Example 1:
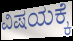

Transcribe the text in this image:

ವಿಷಯಕ್ಕೆ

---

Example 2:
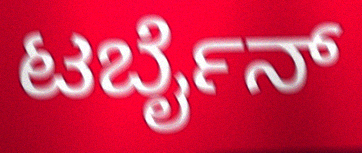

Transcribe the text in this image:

ಟರ್ಬೈನ್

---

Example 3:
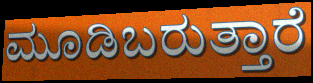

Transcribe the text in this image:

ಮೂಡಿಬರುತ್ತಾರೆ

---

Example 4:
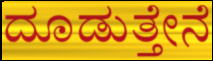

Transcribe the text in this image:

ದೂಡುತ್ತೇನೆ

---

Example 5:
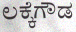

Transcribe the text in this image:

ಲಕ್ಕೆಗೌಡ